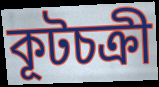
কূটচক্রী